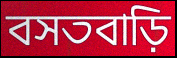
বসতবাড়ি